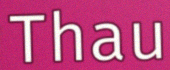
Thau